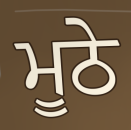
ਮੂਠੇ